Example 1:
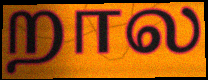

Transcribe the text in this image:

றால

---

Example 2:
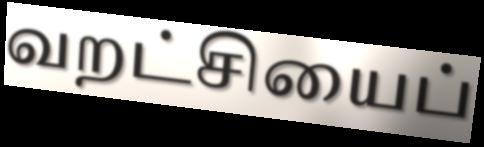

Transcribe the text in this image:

வறட்சியைப்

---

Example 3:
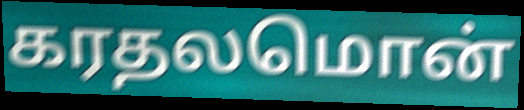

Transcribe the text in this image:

கரதலமொன்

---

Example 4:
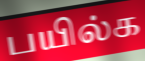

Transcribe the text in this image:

பயில்க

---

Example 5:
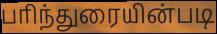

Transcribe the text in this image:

பரிந்துரையின்படி